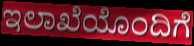
ಇಲಾಖೆಯೊಂದಿಗೆ